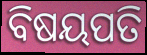
ବିଷୟପତି